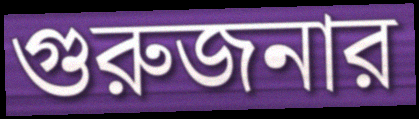
গুরুজনার